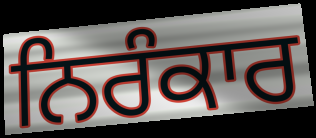
ਨਿਰੰਕਾਰ